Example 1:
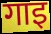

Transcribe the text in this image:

गाइ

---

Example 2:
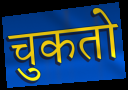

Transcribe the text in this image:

चुकतो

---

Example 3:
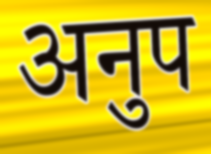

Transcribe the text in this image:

अनुप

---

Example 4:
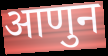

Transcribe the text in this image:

आणुन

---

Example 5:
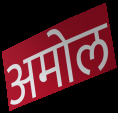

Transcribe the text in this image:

अमोल